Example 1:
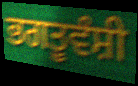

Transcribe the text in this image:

ਭਗਤੂਵੰਸ਼ੀ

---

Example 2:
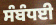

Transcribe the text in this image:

ਸੰਬੰਧਈ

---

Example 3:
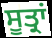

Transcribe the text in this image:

ਸੂਤ੍ਰਾਂ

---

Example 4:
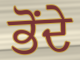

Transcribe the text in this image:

ਭੋਂਦੇ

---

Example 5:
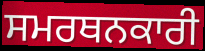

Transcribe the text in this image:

ਸਮਰਥਨਕਾਰੀ